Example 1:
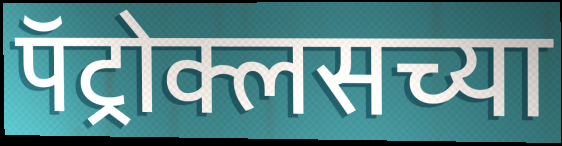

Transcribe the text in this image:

पॅट्रोक्लसच्या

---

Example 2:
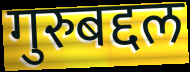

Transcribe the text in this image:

गुरुबद्दल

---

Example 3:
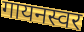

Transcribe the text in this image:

गायनस्वर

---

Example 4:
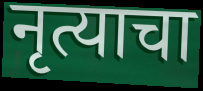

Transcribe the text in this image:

नृत्याचा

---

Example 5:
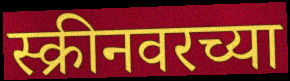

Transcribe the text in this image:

स्क्रीनवरच्या